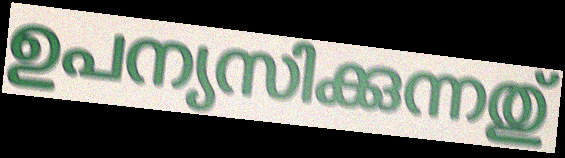
ഉപന്യസിക്കുന്നതു്